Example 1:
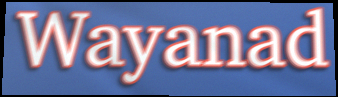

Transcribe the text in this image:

Wayanad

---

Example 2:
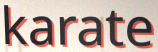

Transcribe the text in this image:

karate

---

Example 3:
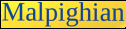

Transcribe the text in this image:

Malpighian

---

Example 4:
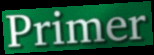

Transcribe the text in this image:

Primer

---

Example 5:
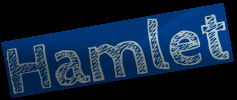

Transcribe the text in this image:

Hamlet